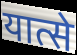
यात्से